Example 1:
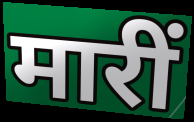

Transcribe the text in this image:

मारीं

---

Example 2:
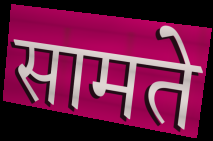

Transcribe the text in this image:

सामते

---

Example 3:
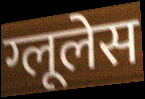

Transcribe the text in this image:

ग्लूलेस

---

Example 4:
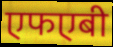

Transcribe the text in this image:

एफएबी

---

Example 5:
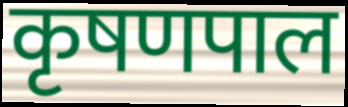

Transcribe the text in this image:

कृषणपाल